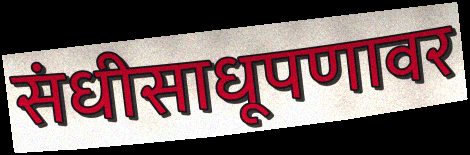
संधीसाधूपणावर